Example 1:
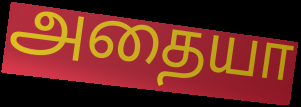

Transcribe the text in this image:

அதையா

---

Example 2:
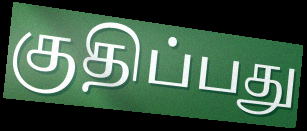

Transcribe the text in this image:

குதிப்பது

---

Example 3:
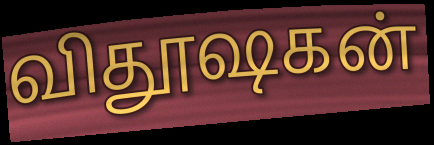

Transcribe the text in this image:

விதூஷகன்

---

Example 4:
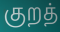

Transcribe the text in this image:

குறத்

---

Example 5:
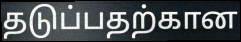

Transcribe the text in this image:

தடுப்பதற்கான